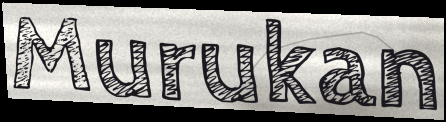
Murukan